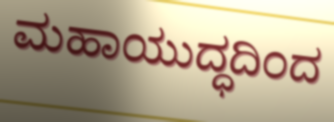
ಮಹಾಯುದ್ಧದಿಂದ